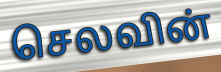
செலவின்